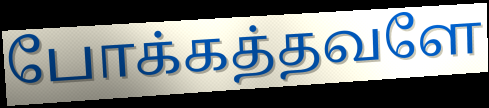
போக்கத்தவளே